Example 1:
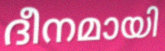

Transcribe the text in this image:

ദീനമായി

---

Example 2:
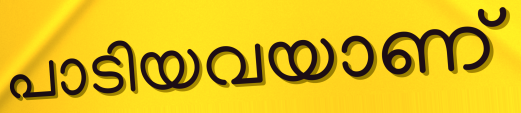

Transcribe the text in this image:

പാടിയവയാണ്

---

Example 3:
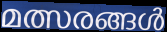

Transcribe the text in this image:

മത്സരങ്ങൾ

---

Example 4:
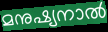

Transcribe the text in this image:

മനുഷ്യനാൽ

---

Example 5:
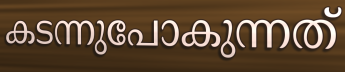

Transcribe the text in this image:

കടന്നുപോകുന്നത്